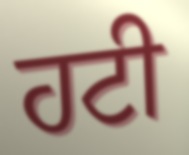
ਹਟੀ